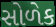
સોળેક